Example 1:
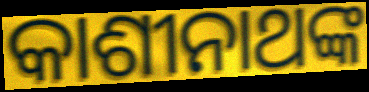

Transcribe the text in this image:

କାଶୀନାଥଙ୍କ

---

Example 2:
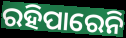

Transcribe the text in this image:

ରହିପାରେନି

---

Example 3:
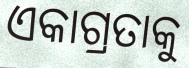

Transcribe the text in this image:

ଏକାଗ୍ରତାକୁ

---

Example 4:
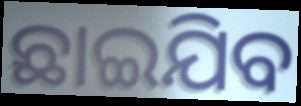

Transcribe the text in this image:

ଛାଇଯିବ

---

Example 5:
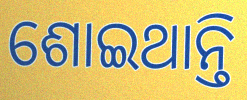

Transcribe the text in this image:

ଶୋଇଥାନ୍ତି